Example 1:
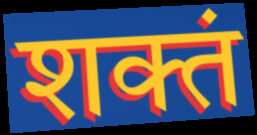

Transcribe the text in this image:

शक्तं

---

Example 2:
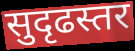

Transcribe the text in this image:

सुदृढस्तर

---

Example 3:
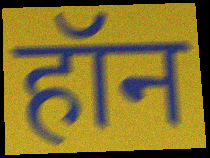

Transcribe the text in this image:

हॉन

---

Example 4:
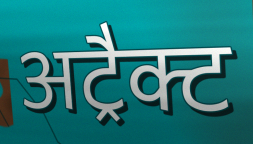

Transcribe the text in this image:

अट्रैक्ट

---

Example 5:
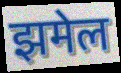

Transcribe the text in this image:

झमेल